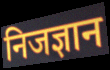
निजज्ञान